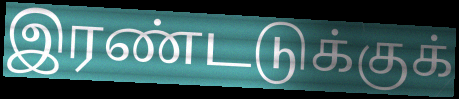
இரண்டடுக்குக்